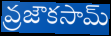
వ్రజౌకసామ్